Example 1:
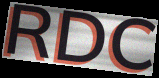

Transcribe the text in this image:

RDC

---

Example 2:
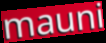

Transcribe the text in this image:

mauni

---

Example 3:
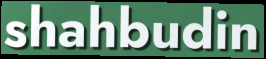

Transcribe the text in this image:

shahbudin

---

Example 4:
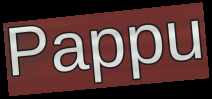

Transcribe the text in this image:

Pappu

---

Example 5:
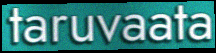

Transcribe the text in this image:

taruvaata